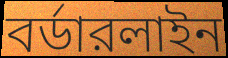
বর্ডারলাইন